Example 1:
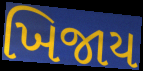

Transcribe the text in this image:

ખિજાય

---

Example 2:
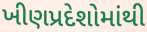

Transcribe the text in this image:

ખીણપ્રદેશોમાંથી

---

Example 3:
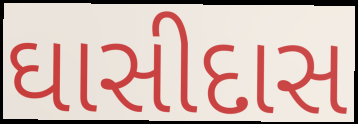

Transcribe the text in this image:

ઘાસીદાસ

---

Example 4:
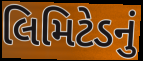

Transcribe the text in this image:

લિમિટેડનું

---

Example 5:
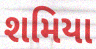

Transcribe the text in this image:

શમિયા